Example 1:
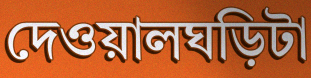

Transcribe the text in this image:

দেওয়ালঘড়িটা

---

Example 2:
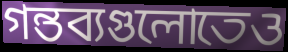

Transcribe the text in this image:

গন্তব্যগুলোতেও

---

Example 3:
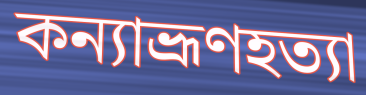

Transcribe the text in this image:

কন্যাভ্রূণহত্যা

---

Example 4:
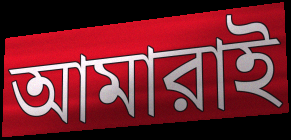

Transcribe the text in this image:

আমারাই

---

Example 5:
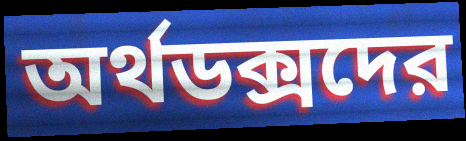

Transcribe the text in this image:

অর্থডক্সদের